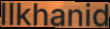
Ilkhanid